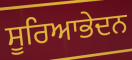
ਸੂਰਿਆਭੇਦਨ